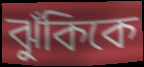
ঝুঁকিকে